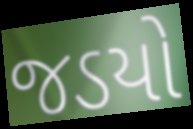
જડયો